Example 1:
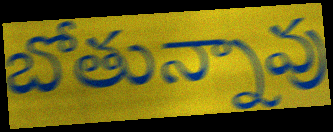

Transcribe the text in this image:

బోతున్నావు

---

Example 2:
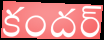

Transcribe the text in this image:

కందర్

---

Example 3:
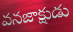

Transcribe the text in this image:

వనజాక్షుడు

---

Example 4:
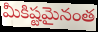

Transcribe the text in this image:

మీకిష్టమైనంత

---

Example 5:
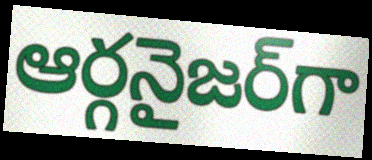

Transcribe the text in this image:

ఆర్గనైజర్‌గా